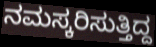
ನಮಸ್ಕರಿಸುತ್ತಿದ್ದ